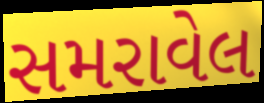
સમરાવેલ